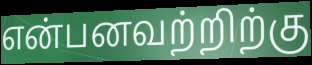
என்பனவற்றிற்கு